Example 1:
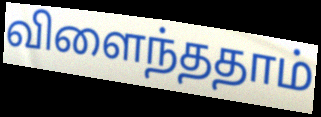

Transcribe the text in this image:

விளைந்ததாம்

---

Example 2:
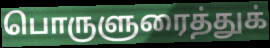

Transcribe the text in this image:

பொருளுரைத்துக்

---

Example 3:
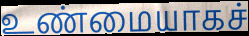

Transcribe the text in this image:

உண்மையாகச்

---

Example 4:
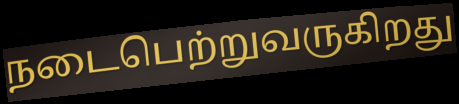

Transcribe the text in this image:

நடைபெற்றுவருகிறது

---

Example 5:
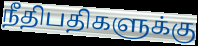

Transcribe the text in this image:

நீதிபதிகளுக்கு